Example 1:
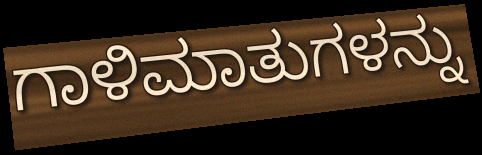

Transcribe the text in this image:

ಗಾಳಿಮಾತುಗಳನ್ನು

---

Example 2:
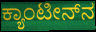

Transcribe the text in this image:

ಕ್ಯಾಂಟೀನ್‌ನ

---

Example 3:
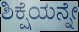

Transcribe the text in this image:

ಶಿಕ್ಷೆಯನ್ನೇ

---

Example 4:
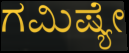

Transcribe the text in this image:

ಗಮಿಷ್ಯೇ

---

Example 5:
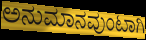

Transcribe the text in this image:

ಅನುಮಾನವುಂಟಾಗಿ